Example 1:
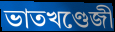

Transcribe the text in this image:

ভাতখণ্ডেজী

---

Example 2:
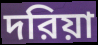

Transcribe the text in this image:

দরিয়া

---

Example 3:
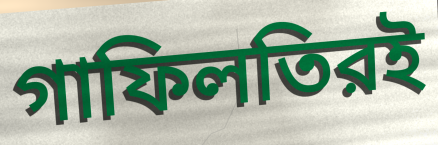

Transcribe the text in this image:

গাফিলতিরই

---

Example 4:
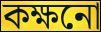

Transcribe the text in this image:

কক্ষনো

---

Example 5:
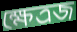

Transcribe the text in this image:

ক্ষেত্রজ